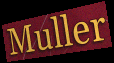
Muller